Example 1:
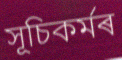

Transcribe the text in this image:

সূচিকৰ্মৰ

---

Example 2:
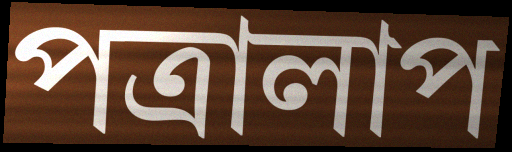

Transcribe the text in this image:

পত্ৰালাপ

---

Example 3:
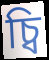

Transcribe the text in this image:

চ্বি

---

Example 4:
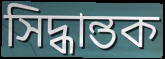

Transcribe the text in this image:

সিদ্ধান্তক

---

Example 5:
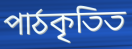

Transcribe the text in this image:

পাঠকৃতিত